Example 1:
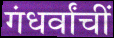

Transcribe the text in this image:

गंधर्वांचीं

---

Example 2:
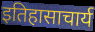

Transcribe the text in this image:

इतिहासाचार्य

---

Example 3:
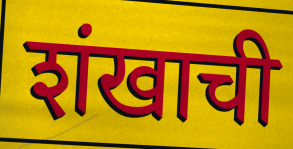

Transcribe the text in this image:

शंखाची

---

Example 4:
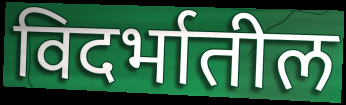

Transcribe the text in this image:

विदर्भातील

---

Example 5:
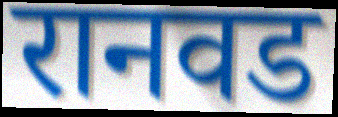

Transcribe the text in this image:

रानवड